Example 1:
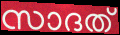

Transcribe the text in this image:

സാദത്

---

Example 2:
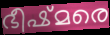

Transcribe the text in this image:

ഭീഷ്മരെ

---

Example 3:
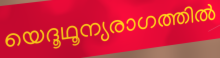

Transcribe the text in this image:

യെദൂഥൂന്യരാഗത്തിൽ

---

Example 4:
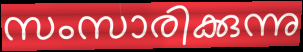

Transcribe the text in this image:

സംസാരിക്കുന്നു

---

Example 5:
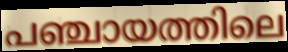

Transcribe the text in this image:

പഞ്ചായത്തിലെ